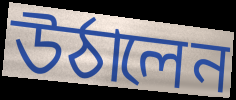
উঠালেন